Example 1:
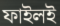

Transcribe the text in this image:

ফাইলই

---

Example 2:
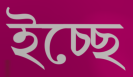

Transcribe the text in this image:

ইচ্ছে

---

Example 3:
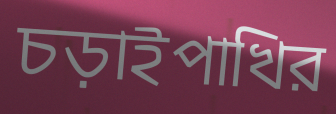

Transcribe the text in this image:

চড়াইপাখির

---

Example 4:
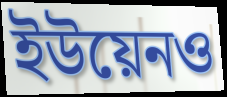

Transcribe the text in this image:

ইউয়েনও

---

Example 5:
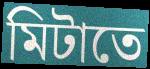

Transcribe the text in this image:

মিটাতে